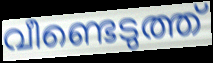
വീണ്ടെടുത്ത്